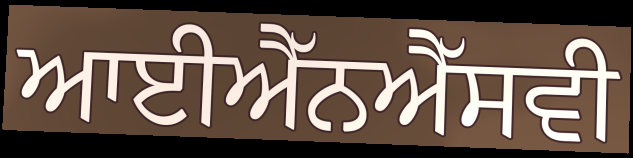
ਆਈਐੱਨਐੱਸਵੀ